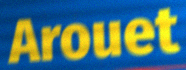
Arouet